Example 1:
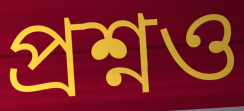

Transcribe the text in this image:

প্রশ্নও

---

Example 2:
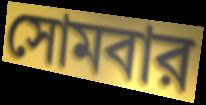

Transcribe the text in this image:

সোমবার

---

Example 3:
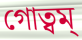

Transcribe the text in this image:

গোত্বম্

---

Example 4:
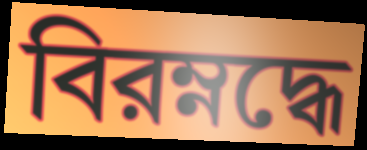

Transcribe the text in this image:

বিরম্নদ্ধে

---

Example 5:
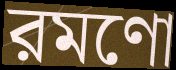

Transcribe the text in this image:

রমণো